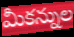
మీకన్నుల